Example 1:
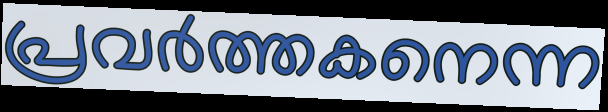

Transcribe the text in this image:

പ്രവർത്തകനെന്ന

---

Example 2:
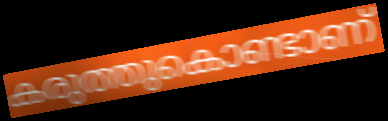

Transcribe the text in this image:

കരുത്തുകൊണ്ടാണ്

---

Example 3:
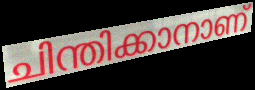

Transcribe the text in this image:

ചിന്തിക്കാനാണ്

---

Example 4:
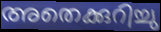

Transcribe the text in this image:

അതെക്കുറിച്ചു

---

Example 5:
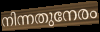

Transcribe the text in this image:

നിന്നതുനേരം